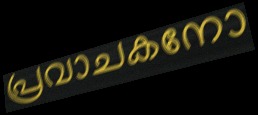
പ്രവാചകനോ